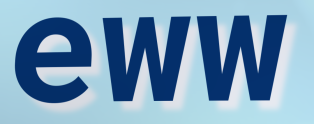
eww